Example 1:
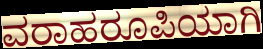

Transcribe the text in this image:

ವರಾಹರೂಪಿಯಾಗಿ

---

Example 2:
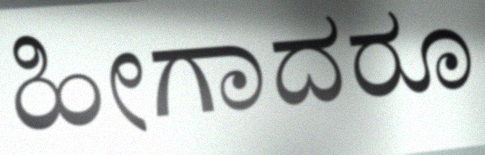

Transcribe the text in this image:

ಹೀಗಾದರೂ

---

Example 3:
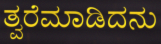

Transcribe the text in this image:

ತ್ವರೆಮಾಡಿದನು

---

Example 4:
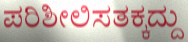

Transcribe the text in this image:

ಪರಿಶೀಲಿಸತಕ್ಕದ್ದು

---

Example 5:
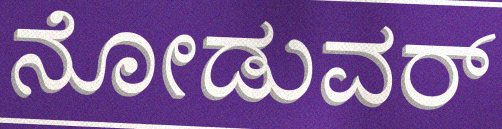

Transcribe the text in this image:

ನೋಡುವರ್